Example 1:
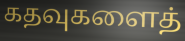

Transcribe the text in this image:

கதவுகளைத்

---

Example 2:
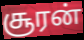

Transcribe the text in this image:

சூரன்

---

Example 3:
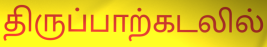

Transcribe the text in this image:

திருப்பாற்கடலில்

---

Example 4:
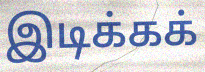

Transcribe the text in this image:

இடிக்கக்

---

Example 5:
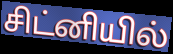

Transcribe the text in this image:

சிட்னியில்